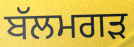
ਬੱਲਮਗੜ